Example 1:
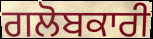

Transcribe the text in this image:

ਗਲੋਬਕਾਰੀ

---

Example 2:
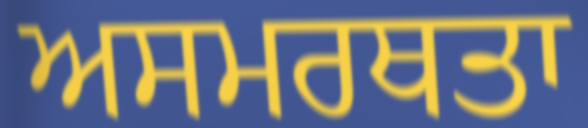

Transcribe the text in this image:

ਅਸਮਰਥਤਾ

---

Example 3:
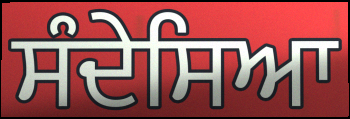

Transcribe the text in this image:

ਸੰਦੇਸਿਆ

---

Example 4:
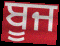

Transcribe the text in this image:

ਬੂਜ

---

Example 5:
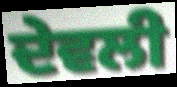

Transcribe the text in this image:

ਦੇਵਲੀ